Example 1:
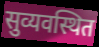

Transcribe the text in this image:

सुव्यवस्थित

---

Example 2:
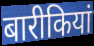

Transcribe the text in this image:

बारीकियां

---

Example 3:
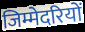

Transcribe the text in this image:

जिम्मेदरियों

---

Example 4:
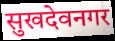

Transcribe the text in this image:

सुखदेवनगर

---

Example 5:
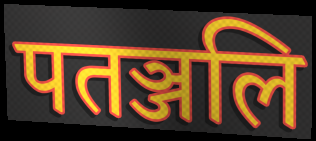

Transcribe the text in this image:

पतञ्जलि